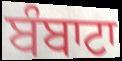
ਬੰਬਾਟਾ